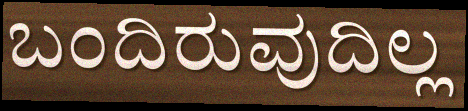
ಬಂದಿರುವುದಿಲ್ಲ